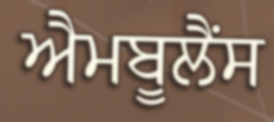
ਐਮਬੂਲੈਂਸ